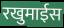
रखुमाईस